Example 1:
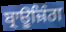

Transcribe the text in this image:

ਬ੍ਰਾਊਜ਼ਿੰਗ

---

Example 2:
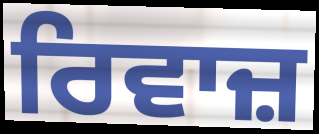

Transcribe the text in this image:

ਰਿਵਾਜ਼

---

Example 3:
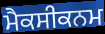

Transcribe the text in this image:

ਮੈਕਸੀਕਨਮ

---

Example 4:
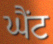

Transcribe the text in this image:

ਘੈਂਟ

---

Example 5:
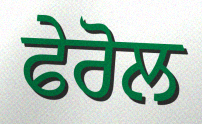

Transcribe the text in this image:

ਫੇਰੋਲ